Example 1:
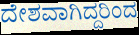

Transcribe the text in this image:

ದೇಶವಾಗಿದ್ದರಿಂದ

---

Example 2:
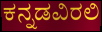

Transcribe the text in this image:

ಕನ್ನಡವಿರಲಿ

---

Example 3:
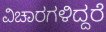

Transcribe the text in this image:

ವಿಚಾರಗಳಿದ್ದರೆ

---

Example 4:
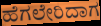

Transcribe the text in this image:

ಹೆಗಲೇರಿದಾಗ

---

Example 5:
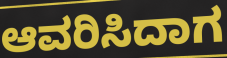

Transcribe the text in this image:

ಆವರಿಸಿದಾಗ